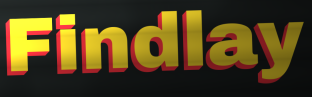
Findlay